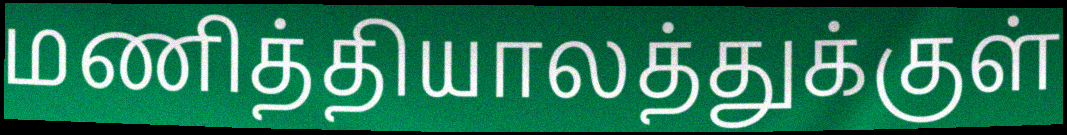
மணித்தியாலத்துக்குள்